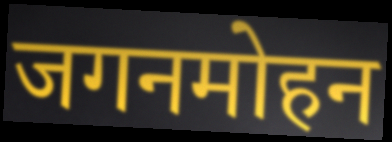
जगनमोहन